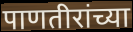
पाणतीरांच्या